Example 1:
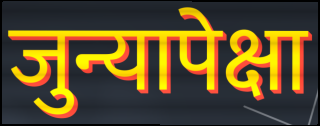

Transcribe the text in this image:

जुन्यापेक्षा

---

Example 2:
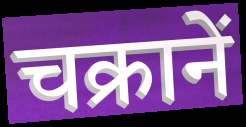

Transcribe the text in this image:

चक्रानें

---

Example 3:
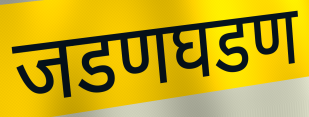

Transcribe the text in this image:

जडणघडण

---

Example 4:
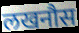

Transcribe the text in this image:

लखनौस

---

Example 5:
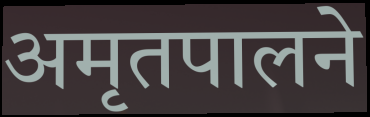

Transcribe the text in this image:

अमृतपालने